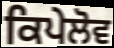
ਕਿਪੇਲੋਵ